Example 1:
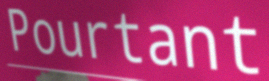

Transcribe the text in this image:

Pourtant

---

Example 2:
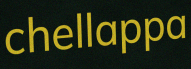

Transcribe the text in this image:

chellappa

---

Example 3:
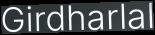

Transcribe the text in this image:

Girdharlal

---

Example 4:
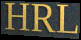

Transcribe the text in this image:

HRL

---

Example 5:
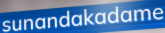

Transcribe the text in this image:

sunandakadame